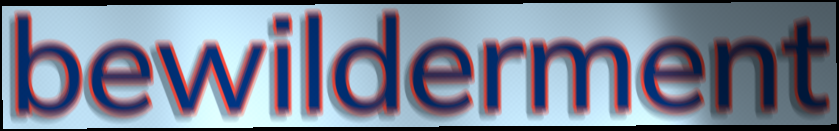
bewilderment